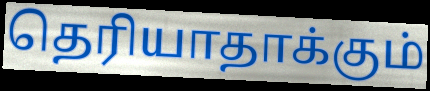
தெரியாதாக்கும்